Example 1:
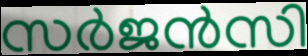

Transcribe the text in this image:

സർജൻസി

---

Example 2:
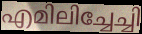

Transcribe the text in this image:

എമിലിച്ചേച്ചി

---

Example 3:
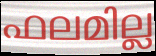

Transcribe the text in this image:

ഫലമില്ല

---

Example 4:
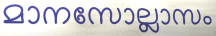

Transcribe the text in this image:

മാനസോല്ലാസം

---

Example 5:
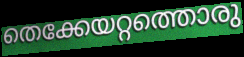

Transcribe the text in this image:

തെക്കേയറ്റത്തൊരു